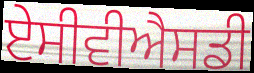
ਏਸੀਵੀਐਸਡੀ